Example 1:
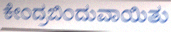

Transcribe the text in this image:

ಕೇಂದ್ರಬಿಂದುವಾಯಿತು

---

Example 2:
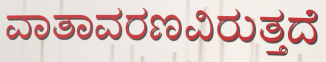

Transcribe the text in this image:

ವಾತಾವರಣವಿರುತ್ತದೆ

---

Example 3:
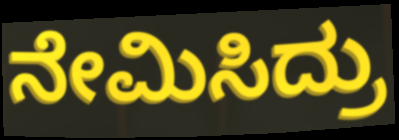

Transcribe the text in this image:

ನೇಮಿಸಿದ್ರು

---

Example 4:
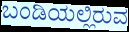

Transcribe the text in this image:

ಬಂಡಿಯಲ್ಲಿರುವ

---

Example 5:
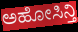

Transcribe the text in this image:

ಅಹೋಸಿನ್ತಿ